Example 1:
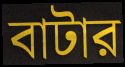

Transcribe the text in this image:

বাটার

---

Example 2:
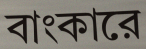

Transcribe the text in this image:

বাংকারে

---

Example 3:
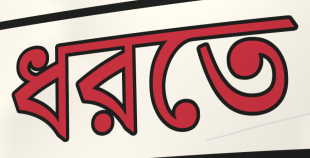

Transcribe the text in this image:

ধরতে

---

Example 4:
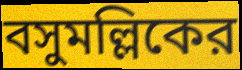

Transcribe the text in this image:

বসুমল্লিকের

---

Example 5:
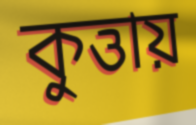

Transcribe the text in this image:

কুত্তায়